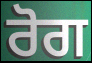
ਰੋਗ